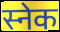
स्नेक